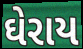
ઘેરાય